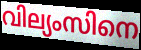
വില്യംസിനെ